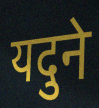
यदुने